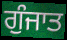
ਗੁੰਜਾਤ